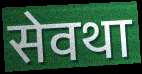
सेवथा